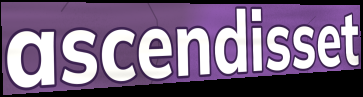
ascendisset